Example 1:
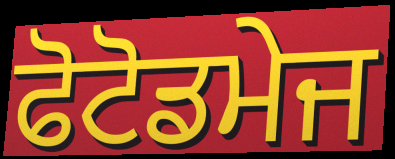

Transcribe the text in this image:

ਫੋਟੋਡਮੇਜ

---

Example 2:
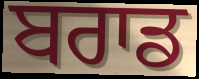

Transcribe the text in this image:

ਬਰਾਡ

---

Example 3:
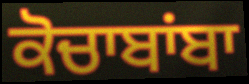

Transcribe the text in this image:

ਕੋਚਾਬਾਂਬਾ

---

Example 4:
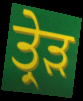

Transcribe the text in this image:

ਤ੍ਰੇੜ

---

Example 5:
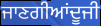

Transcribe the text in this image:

ਜਾਣਗੀਆਂਦੂਜੀ